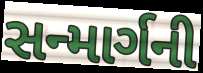
સન્માર્ગની